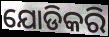
ଯୋଡିକରି